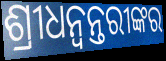
ଶ୍ରୀଧନ୍ୱନ୍ତରୀଙ୍କର